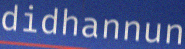
didhannun